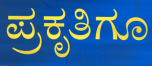
ಪ್ರಕೃತಿಗೂ